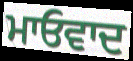
ਮਾਓਵਾਦ